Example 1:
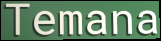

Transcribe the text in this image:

Temana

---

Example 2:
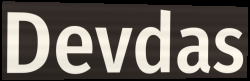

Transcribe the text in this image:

Devdas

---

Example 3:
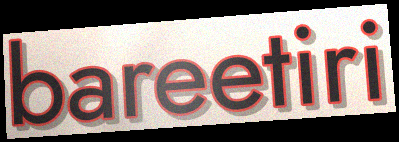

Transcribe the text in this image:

bareetiri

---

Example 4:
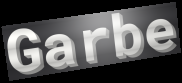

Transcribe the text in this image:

Garbe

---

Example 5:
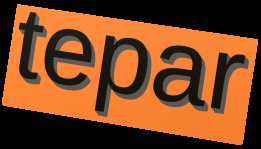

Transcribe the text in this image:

tepar